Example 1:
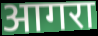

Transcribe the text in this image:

आगरा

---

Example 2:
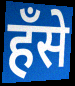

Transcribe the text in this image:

हँसे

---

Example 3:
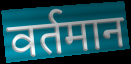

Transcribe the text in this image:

वर्तमान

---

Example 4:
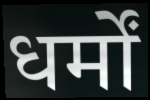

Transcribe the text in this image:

धर्मों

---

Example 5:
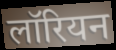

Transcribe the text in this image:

लॉरियन